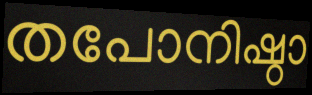
തപോനിഷ്ഠാ